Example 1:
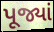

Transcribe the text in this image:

પૂજ્યાં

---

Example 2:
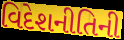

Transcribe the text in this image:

વિદેશનીતિની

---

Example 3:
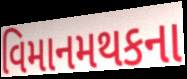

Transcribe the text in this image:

વિમાનમથકના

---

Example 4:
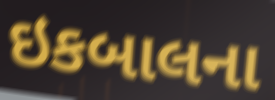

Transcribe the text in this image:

ઇકબાલના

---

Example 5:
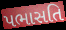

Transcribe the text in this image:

પભાસતિ